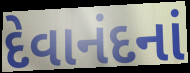
દેવાનંદનાં